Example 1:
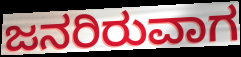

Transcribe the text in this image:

ಜನರಿರುವಾಗ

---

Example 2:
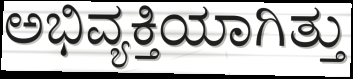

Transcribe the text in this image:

ಅಭಿವ್ಯಕ್ತಿಯಾಗಿತ್ತು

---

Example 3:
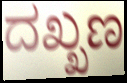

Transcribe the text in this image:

ದಖ್ಖಣ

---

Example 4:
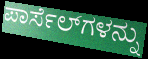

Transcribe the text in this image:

ಪಾರ್ಸೆಲ್‌ಗಳನ್ನು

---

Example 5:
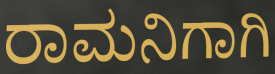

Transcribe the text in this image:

ರಾಮನಿಗಾಗಿ